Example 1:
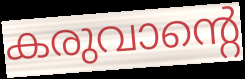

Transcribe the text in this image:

കരുവാന്റെ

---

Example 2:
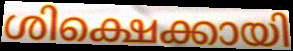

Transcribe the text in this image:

ശിക്ഷെക്കായി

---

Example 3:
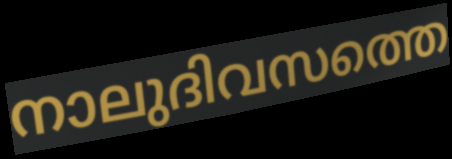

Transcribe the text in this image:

നാലുദിവസത്തെ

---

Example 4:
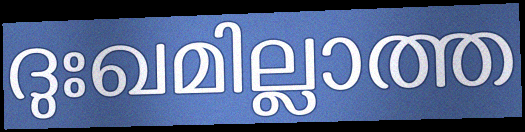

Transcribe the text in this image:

ദുഃഖമില്ലാത്ത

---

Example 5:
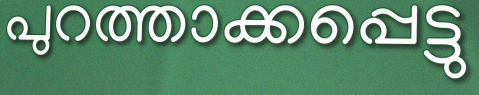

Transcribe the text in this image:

പുറത്താക്കപ്പെട്ടു